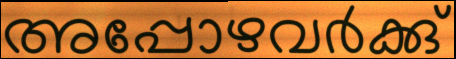
അപ്പോഴവർക്കു്